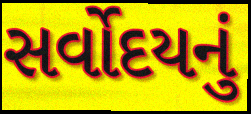
સર્વોદયનું